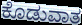
ಕೊಡುವಾತ